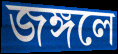
জঙ্গলে